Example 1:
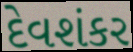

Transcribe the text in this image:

દેવશંકર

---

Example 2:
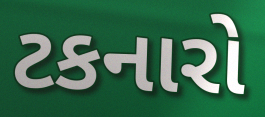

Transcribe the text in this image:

ટકનારો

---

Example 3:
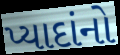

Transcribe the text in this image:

પ્યાદાંનો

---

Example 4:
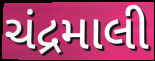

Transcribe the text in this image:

ચંદ્રમાલી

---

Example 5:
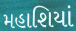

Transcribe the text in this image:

મહાશિયાં